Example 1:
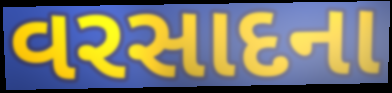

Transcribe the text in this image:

વરસાદના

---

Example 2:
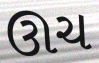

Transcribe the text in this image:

ઊચ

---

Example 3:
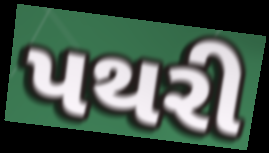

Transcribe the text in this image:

પથરી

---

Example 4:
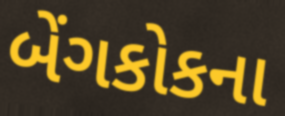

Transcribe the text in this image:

બેંગકોકના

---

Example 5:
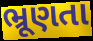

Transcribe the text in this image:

ભ્રૂણતા